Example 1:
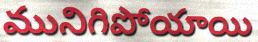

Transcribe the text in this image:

మునిగిపోయాయి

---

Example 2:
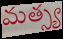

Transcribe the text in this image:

మత్స్య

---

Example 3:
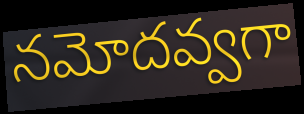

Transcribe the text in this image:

నమోదవ్వగా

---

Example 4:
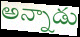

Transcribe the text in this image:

అన్నాడు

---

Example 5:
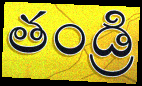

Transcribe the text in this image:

తండ్రి